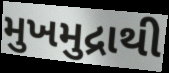
મુખમુદ્રાથી